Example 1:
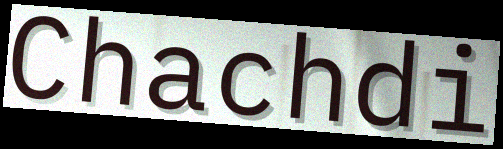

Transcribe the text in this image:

Chachdi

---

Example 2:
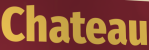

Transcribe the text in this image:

Chateau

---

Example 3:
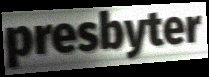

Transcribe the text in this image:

presbyter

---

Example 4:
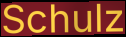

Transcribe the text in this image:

Schulz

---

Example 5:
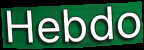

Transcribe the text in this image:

Hebdo